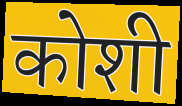
कोशी